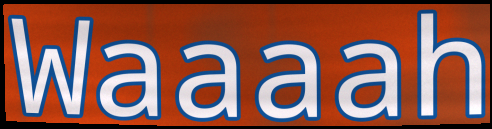
Waaaah